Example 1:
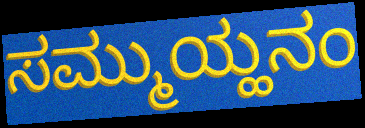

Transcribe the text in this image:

ಸಮ್ಮುಯ್ಹನಂ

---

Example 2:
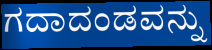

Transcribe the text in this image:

ಗದಾದಂಡವನ್ನು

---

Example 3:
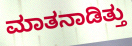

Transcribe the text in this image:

ಮಾತನಾಡಿತ್ತು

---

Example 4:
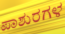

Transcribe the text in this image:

ಪಾಶುರಗಳ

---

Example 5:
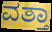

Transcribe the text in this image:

ವತ್ತಾ